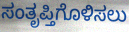
ಸಂತೃಪ್ತಿಗೊಳಿಸಲು